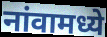
नांवामध्ये